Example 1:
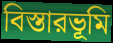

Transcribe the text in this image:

বিস্তারভূমি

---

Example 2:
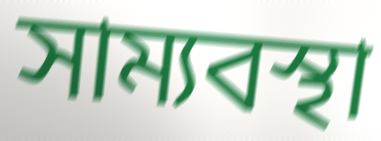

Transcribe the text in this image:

সাম্যবস্থা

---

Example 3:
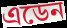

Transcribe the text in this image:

এডেন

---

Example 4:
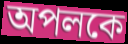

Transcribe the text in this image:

অপলকে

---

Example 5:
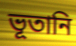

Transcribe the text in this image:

ভূতানি